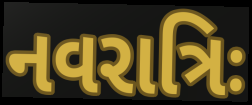
નવરાત્રિઃ